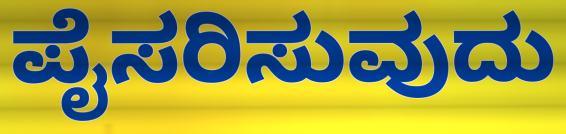
ಪೈಸರಿಸುವುದು